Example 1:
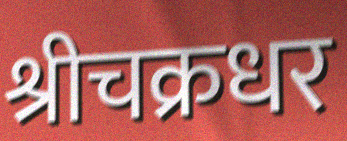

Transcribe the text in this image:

श्रीचक्रधर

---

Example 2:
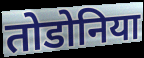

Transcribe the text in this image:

तोडोनिया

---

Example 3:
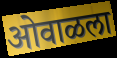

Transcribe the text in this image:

ओवाळला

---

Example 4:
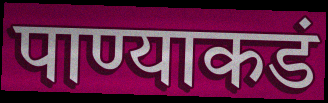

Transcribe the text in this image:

पाण्याकडं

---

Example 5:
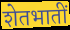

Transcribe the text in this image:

शेतभातीं